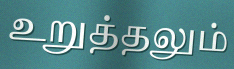
உறுத்தலும்